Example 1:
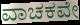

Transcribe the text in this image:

ವಾಚಕವೇ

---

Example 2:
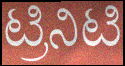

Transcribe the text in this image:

ಟ್ರಿನಿಟಿ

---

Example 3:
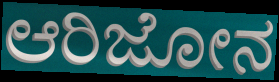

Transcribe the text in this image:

ಆರಿಜೋನ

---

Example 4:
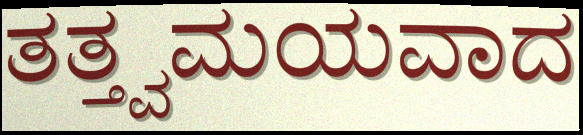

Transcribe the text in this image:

ತತ್ತ್ವಮಯವಾದ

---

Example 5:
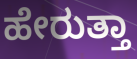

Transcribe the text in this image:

ಹೇರುತ್ತಾ